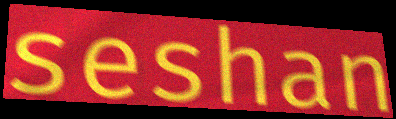
seshan